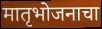
मातृभोजनाचा